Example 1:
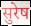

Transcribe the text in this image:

सुरेष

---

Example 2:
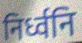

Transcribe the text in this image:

निर्ध्वनि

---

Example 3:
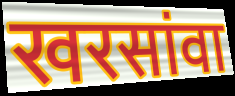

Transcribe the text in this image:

खरसांवा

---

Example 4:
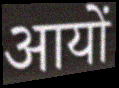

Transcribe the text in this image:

आयों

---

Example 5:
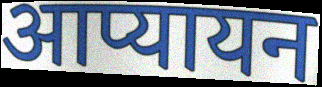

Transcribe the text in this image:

आप्यायन